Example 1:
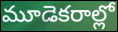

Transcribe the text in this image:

మూడెకరాల్లో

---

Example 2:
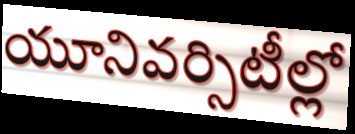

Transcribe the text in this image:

యూనివర్సిటీల్లో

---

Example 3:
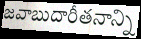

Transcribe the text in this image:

జవాబుదారీతనాన్ని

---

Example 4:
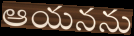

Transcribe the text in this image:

ఆయనను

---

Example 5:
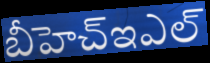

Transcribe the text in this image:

బీహెచ్ఇఎల్